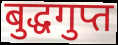
बुद्धगुप्त